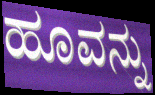
ಹೂವನ್ನು